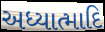
અધ્યાત્માદિ